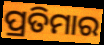
ପ୍ରତିମାର